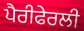
ਪੈਰੀਫੇਰਲੀ